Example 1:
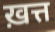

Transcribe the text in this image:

ख़त्त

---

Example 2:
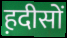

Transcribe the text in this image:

ह़दीसों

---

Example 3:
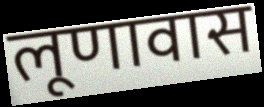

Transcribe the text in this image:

लूणावास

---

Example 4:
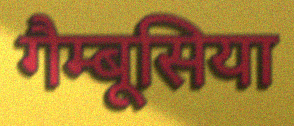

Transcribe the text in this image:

गैम्बूसिया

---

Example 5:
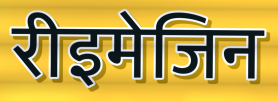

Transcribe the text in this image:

रीइमेजिन